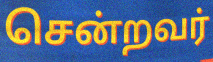
சென்றவர்